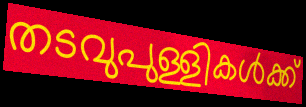
തടവുപുള്ളികൾക്ക്